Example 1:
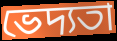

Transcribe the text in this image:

ভেদ্যতা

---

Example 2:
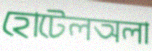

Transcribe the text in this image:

হোটেলঅলা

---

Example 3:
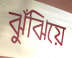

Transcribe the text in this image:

ঝুঁঝিয়ে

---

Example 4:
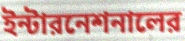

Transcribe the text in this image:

ইন্টারনেশনালের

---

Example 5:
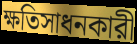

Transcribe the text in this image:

ক্ষতিসাধনকারী